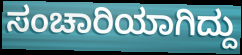
ಸಂಚಾರಿಯಾಗಿದ್ದು